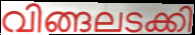
വിങ്ങലടക്കി